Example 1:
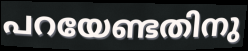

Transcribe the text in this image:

പറയേണ്ടതിനു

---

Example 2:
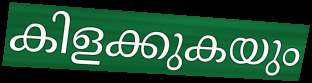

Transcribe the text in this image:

കിളക്കുകയും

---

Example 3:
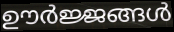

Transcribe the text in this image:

ഊർജ്ജങ്ങൾ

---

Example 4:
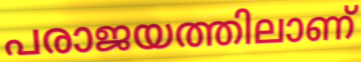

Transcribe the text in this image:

പരാജയത്തിലാണ്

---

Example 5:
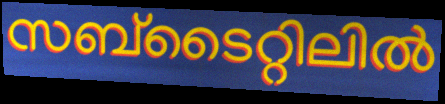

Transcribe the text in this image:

സബ്ടൈറ്റിലിൽ